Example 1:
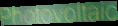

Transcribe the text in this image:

Photovoltaic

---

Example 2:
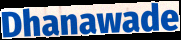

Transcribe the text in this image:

Dhanawade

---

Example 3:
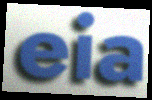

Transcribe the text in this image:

eia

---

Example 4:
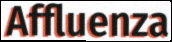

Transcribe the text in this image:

Affluenza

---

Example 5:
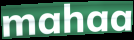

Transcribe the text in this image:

mahaa